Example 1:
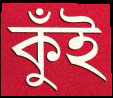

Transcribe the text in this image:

কুঁই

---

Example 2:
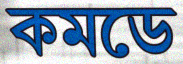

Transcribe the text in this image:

কমডে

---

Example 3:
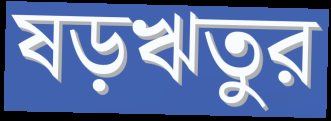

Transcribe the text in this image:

ষড়ঋতুর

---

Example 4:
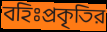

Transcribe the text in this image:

বহিঃপ্রকৃতির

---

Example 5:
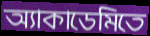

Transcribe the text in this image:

অ্যাকাডেমিতে